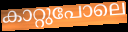
കാറ്റുപോലെ